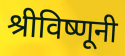
श्रीविष्णूनी